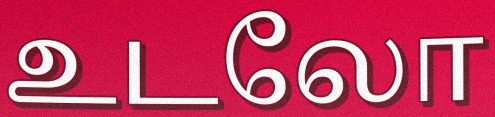
உடலோ